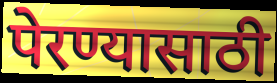
पेरण्यासाठी